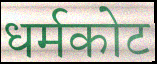
धर्मकोट